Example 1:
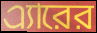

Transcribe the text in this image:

এ্যারের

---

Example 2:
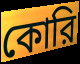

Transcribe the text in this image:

কোরি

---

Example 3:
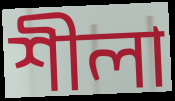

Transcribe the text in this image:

শীলা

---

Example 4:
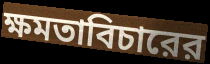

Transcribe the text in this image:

ক্ষমতাবিচারের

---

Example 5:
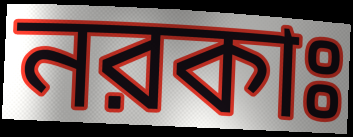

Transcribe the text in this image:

নরকাঃ